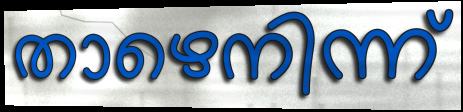
താഴെനിന്ന്